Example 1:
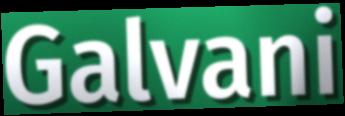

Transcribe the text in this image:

Galvani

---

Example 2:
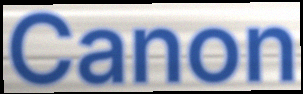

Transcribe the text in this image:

Canon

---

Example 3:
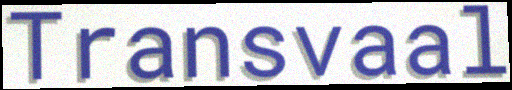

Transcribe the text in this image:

Transvaal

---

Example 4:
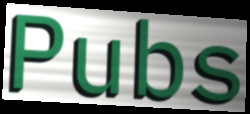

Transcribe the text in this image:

Pubs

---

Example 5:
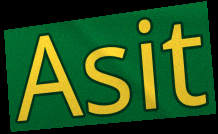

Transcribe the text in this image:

Asit